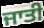
ਜਾਤੀ